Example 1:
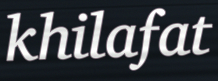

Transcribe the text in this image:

khilafat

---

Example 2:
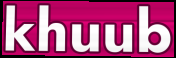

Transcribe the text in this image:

khuub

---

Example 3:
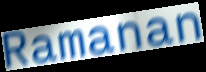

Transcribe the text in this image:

Ramanan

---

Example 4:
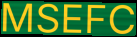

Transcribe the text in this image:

MSEFC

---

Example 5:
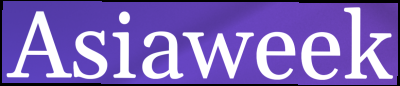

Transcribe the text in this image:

Asiaweek